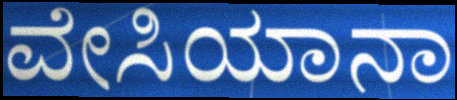
ವೇಸಿಯಾನಾ